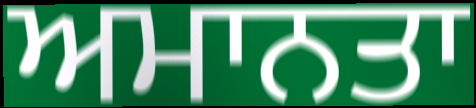
ਅਮਾਨਤਾ